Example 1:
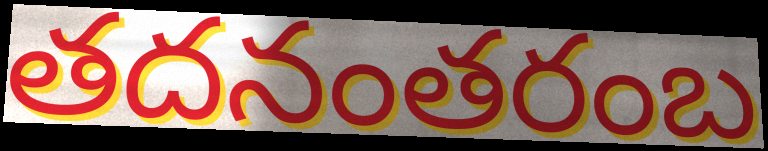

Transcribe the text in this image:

తదనంతరంబ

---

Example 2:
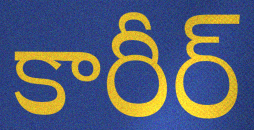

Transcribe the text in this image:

కారీర్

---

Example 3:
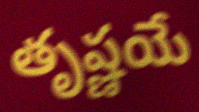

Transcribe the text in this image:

తృష్ణయే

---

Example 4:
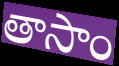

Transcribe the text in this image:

తాసాం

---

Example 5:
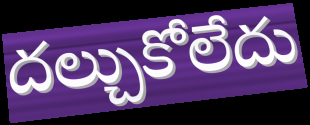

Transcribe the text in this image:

దల్చుకోలేదు